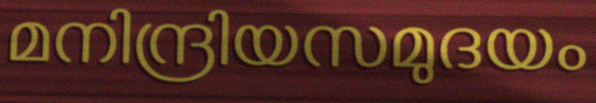
മനിന്ദ്രിയസമുദയം